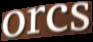
orcs